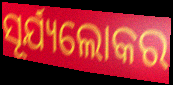
ସୂର୍ଯ୍ୟଲୋକର